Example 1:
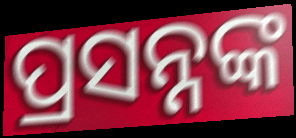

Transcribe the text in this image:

ପ୍ରସନ୍ନଙ୍କ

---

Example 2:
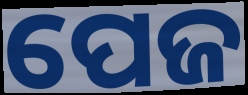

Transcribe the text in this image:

ପେଜ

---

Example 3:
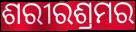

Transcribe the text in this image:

ଶରୀରଶ୍ରମର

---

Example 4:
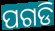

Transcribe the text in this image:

ପଗଡି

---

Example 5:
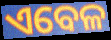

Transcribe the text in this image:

ଏବେଳ